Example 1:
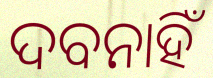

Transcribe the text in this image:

ଦବନାହିଁ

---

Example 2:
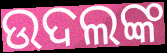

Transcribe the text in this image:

ଉଦଲଙ୍କ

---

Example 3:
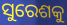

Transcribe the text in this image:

ସୁରେଶକୁ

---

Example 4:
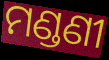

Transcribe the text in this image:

ମଣ୍ଡଣୀ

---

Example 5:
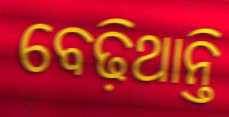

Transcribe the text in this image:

ବେଢ଼ିଥାନ୍ତି